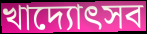
খাদ্যোৎসব